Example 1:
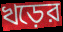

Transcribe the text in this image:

খড়ের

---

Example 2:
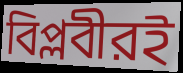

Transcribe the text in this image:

বিপ্লবীরই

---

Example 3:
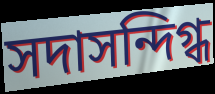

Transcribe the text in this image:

সদাসন্দিগ্ধ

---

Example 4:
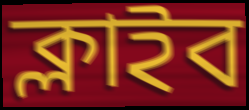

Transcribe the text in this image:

ক্লাইব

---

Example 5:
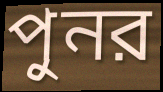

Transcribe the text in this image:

পুনর